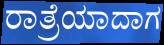
ರಾತ್ರೆಯಾದಾಗ